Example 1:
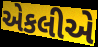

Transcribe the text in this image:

એકલીએ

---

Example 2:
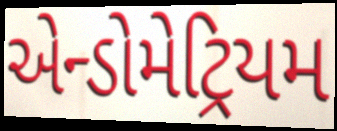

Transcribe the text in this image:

એન્ડોમેટ્રિયમ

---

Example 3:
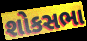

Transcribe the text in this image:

શોકસભા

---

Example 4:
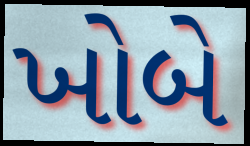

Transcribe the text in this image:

ખોબે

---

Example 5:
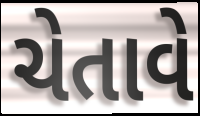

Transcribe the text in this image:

ચેતાવે